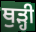
ਥੁੜ੍ਹੀ